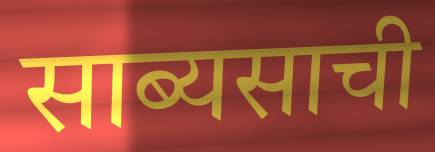
साब्यसाची